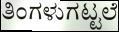
ತಿಂಗಳುಗಟ್ಟಲೆ